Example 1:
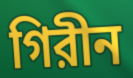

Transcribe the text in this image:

গিরীন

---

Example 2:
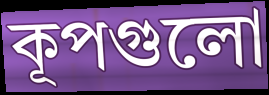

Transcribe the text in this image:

কূপগুলো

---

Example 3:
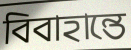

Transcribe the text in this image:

বিবাহান্তে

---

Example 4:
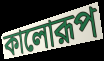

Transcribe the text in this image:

কালোরূপ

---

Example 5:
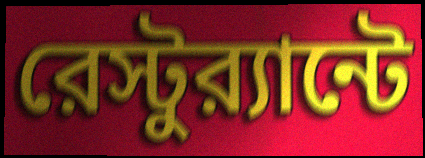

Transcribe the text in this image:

রেস্টুর‍্যান্টে